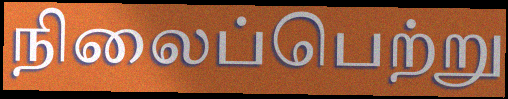
நிலைப்பெற்று